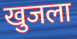
खुजला